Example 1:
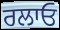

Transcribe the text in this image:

ਰਲਾਓ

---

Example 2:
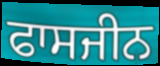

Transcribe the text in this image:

ਫਾਸਜੀਨ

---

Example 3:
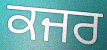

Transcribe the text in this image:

ਕਜਰ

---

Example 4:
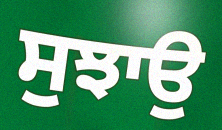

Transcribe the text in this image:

ਸੁਝਾਉ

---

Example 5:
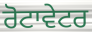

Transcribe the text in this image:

ਰੋਟਾਵੇਟਰ